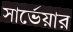
সার্ভেয়ার